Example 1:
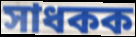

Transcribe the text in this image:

সাধকক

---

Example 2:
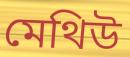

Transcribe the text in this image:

মেথিউ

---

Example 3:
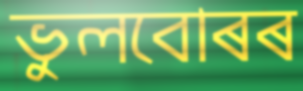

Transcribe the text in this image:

ভুলবোৰৰ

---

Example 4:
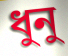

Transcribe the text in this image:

ধুনু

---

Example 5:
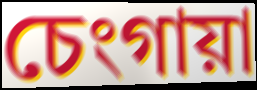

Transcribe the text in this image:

চেংগায়া